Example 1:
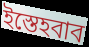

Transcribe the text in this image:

ইস্তেহবাব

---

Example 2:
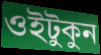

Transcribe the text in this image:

ওইটুকুন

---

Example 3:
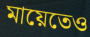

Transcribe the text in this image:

মায়েতেও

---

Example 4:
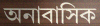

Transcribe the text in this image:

অনাবাসিক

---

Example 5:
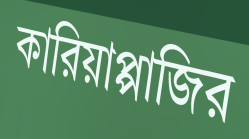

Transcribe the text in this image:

কারিয়াপ্পাজির